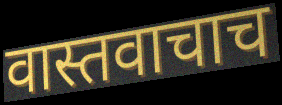
वास्तवाचाच